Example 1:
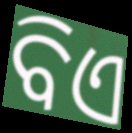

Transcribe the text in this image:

ବିଏ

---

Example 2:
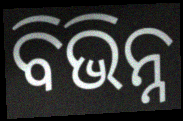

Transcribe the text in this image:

ବିଭିନ୍ନ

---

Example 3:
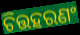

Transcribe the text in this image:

ଚିତ୍ତହରଣଂ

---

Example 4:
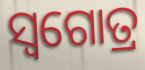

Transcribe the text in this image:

ସ୍ୱଗୋତ୍ର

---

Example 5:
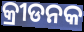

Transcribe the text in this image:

କ୍ରୀଡନକ